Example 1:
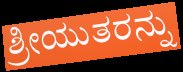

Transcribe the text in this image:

ಶ್ರೀಯುತರನ್ನು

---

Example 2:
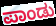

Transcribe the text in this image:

ಪಾಂಡು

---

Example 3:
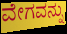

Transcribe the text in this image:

ವೇಗವನ್ನು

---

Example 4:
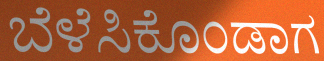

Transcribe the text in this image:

ಬೆಳೆಸಿಕೊಂಡಾಗ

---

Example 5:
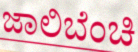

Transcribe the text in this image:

ಜಾಲಿಬೆಂಚಿ